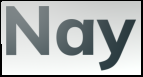
Nay